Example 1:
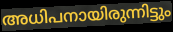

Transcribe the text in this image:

അധിപനായിരുന്നിട്ടും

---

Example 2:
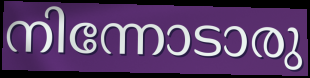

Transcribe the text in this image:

നിന്നോടാരു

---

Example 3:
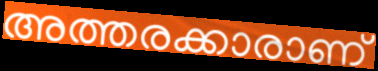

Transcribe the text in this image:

അത്തരക്കാരാണ്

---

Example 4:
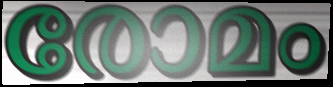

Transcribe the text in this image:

രോമം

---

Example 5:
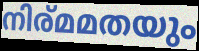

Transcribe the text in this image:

നിര്മമതയും